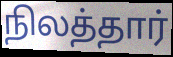
நிலத்தார்